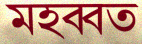
মহব্বত